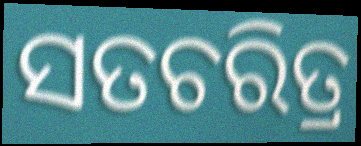
ସତଚରିତ୍ର